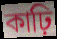
কাঢ়ি